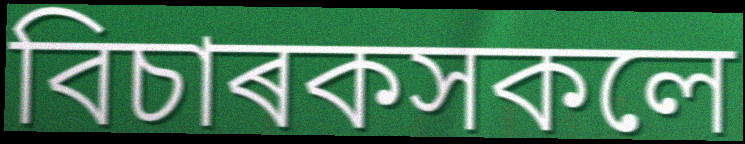
বিচাৰকসকলে